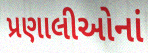
પ્રણાલીઓનાં